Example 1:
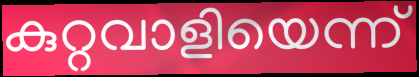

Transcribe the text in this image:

കുറ്റവാളിയെന്ന്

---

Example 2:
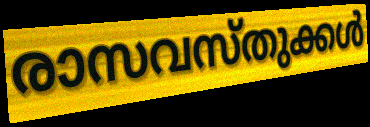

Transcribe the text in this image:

രാസവസ്തുക്കൾ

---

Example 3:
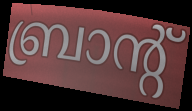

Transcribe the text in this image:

ബ്രാന്റ്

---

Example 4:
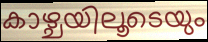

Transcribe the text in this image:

കാഴ്ചയിലൂടെയും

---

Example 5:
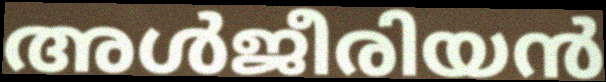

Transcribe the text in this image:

അൾജീരിയൻ